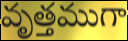
వృత్తముగా